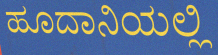
ಹೂದಾನಿಯಲ್ಲಿ